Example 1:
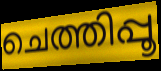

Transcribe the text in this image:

ചെത്തിപ്പൂ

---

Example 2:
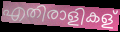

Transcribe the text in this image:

എതിരാളികള്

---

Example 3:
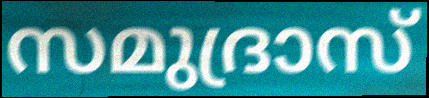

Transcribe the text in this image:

സമുദ്രാസ്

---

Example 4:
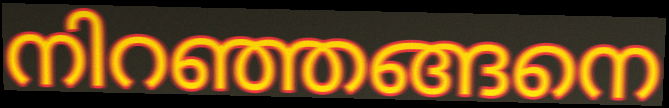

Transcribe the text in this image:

നിറഞ്ഞങ്ങനെ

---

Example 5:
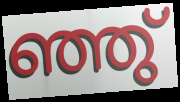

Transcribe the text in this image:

ഞ്ഞു്